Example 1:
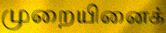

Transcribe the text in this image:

முறையினைக்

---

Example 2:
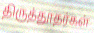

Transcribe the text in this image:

திருத்தூதர்கள்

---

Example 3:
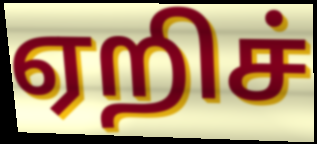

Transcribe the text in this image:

ஏறிச்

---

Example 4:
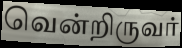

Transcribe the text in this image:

வென்றிருவர்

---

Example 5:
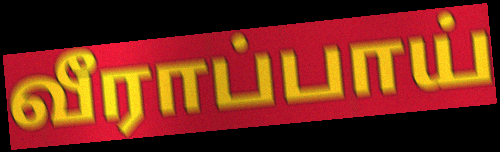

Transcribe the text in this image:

வீராப்பாய்